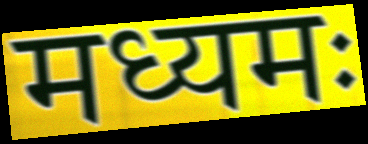
मध्यमः